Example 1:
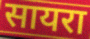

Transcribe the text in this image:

सायरा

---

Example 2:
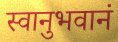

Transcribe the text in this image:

स्वानुभवानं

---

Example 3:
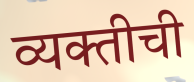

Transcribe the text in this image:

व्यक्तीची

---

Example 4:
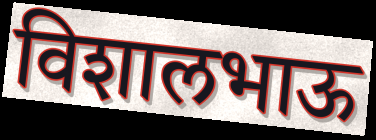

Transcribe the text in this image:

विशालभाऊ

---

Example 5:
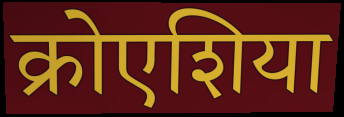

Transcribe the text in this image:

क्रोएशिया